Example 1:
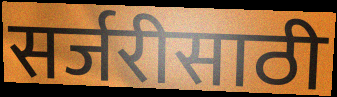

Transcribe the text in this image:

सर्जरीसाठी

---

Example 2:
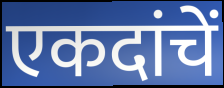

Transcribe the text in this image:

एकदांचें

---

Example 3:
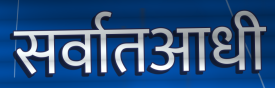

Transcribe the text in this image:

सर्वातआधी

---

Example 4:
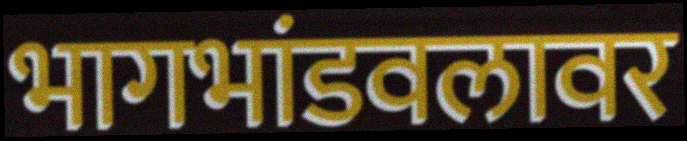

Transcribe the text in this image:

भागभांडवलावर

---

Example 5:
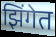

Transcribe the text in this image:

झिंगेत